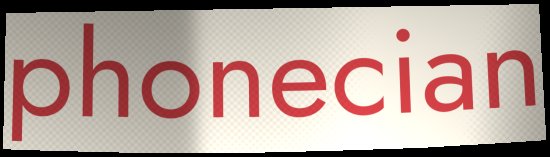
phonecian